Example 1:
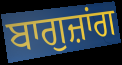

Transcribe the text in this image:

ਬਾਗੁਜ਼ਾਂਗ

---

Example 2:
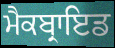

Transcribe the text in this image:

ਮੈਕਬ੍ਰਾਇਡ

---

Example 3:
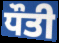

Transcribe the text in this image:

ਧੌਤੀ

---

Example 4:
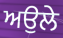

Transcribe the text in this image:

ਅਉਲੇ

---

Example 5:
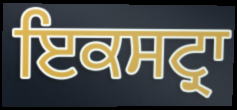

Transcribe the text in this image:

ਇਕਸਟ੍ਰਾ